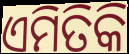
ଏମିତିକି